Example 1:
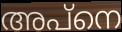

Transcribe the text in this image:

അപ്നെ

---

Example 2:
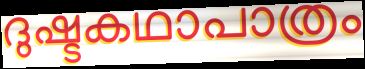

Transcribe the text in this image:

ദുഷ്ടകഥാപാത്രം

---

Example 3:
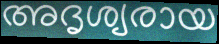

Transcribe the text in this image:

അദൃശ്യരായ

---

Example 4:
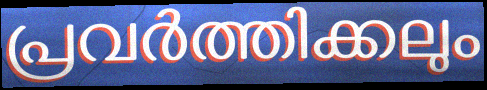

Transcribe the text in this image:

പ്രവർത്തിക്കലും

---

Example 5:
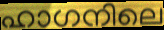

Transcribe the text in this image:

ഹാഗനിലെ